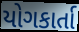
યોગકાર્તા